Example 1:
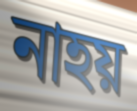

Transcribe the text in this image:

নাহয়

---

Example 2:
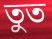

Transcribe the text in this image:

তুত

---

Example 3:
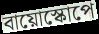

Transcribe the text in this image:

বায়োস্কোপে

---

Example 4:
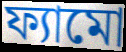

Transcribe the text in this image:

ফ্যামো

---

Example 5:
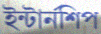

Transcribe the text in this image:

ইন্টার্নশিপ